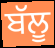
ਬੱਲੂ